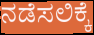
ನಡೆಸಲಿಕ್ಕೆ